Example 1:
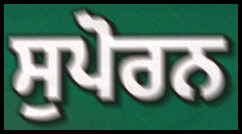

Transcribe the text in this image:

ਸੁਪੋਰਨ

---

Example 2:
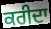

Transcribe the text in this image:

ਕਰੀਦਾ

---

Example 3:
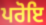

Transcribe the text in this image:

ਪਰੋਇ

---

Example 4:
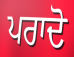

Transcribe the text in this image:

ਪਰਾਦੋ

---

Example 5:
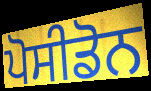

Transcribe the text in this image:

ਪੋਸੀਡੋਨ